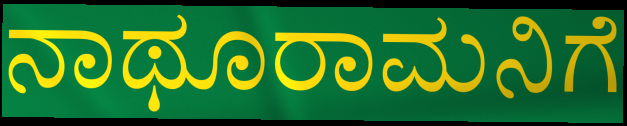
ನಾಥೂರಾಮನಿಗೆ